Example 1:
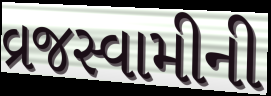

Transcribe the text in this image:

વ્રજસ્વામીની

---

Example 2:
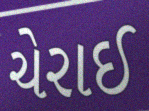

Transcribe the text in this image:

ચેરાઈ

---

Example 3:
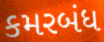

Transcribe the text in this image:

કમરબંધ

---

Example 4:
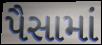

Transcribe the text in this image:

પૈસામાં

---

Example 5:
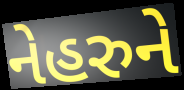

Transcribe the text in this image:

નેહરુને